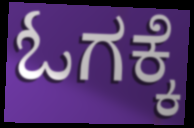
ಓಗಕ್ಕೆ